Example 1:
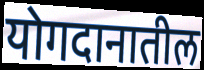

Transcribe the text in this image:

योगदानातील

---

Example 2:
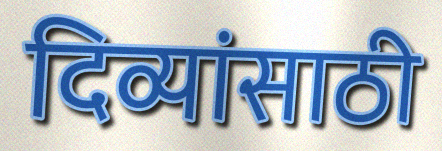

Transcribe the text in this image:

दिव्यांसाठी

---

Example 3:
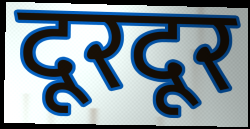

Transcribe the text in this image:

दूरदूर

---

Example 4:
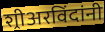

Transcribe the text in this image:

श्रीअरविंदांनी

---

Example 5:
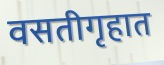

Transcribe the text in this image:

वसतीगृहात